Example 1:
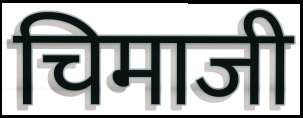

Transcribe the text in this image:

चिमाजी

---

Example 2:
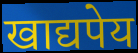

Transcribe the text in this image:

खाद्यपेय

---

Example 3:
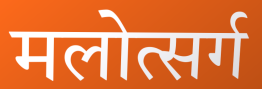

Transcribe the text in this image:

मलोत्सर्ग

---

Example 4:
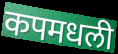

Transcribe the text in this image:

कपमधली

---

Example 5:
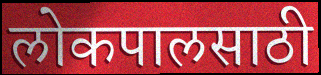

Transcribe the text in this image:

लोकपालसाठी